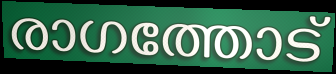
രാഗത്തോട്